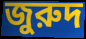
জুরুদ